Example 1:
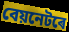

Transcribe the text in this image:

বেয়নেটৰে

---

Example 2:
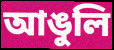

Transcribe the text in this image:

আঙুলি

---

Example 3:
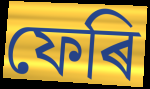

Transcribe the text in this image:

ফেৰি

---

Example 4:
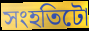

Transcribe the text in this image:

সংহতিটো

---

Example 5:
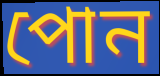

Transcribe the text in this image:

পোন